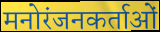
मनोरंजनकर्ताओं